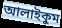
আলাইকুম